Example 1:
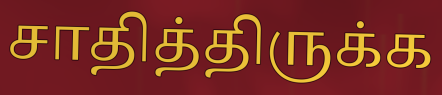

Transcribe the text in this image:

சாதித்திருக்க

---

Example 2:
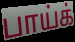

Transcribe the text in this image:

பாய்க்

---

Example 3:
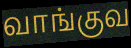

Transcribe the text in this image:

வாங்குவ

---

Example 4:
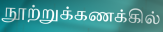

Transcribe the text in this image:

நூற்றுக்கணக்கில்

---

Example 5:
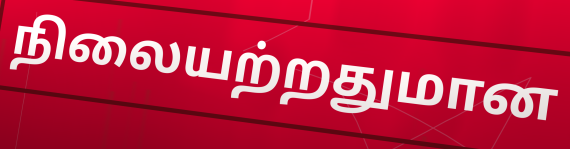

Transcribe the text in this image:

நிலையற்றதுமான